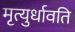
मृत्युर्धावति